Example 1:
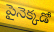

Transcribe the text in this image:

పైనెక్కడో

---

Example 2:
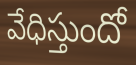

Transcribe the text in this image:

వేధిస్తుందో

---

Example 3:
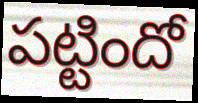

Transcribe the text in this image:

పట్టిందో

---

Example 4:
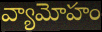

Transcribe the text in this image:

వ్యామోహం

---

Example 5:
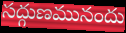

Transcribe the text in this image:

సద్గుణమునందు